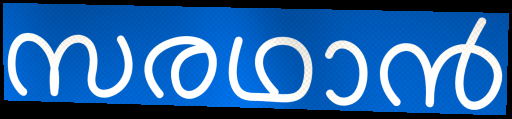
സരഥാൻ